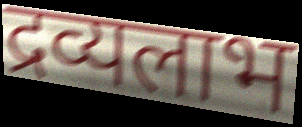
द्रव्यलाभ